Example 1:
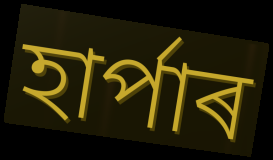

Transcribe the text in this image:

হাৰ্পাৰ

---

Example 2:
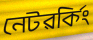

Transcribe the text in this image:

নেটৱৰ্কিং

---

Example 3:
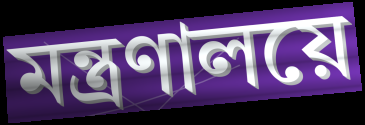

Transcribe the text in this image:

মন্ত্ৰণালয়ে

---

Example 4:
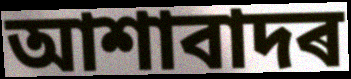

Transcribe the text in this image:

আশাবাদৰ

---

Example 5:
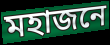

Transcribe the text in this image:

মহাজনে